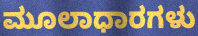
ಮೂಲಾಧಾರಗಳು